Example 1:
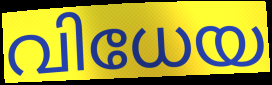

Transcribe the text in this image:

വിധേയ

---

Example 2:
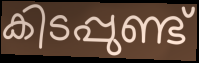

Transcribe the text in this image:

കിടപ്പുണ്ട്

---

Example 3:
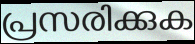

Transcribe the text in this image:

പ്രസരിക്കുക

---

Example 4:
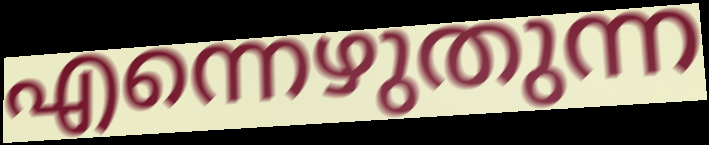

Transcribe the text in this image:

എന്നെഴുതുന്ന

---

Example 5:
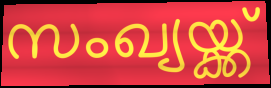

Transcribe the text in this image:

സംഖ്യയ്ക്ക്